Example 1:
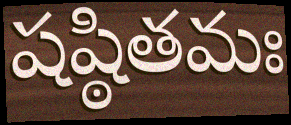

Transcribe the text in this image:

షష్ఠితమః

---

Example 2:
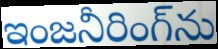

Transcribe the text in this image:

ఇంజనీరింగ్‌ను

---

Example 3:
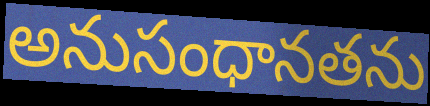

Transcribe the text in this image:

అనుసంధానతను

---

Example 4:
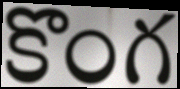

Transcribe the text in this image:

కొంగ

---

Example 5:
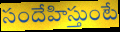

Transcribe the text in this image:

సందేహిస్తుంటే